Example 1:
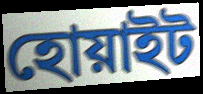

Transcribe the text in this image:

হোয়াইট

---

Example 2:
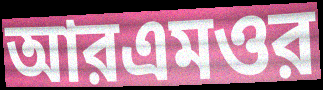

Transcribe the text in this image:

আরএমওর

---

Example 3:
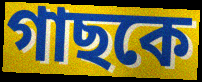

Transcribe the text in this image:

গাছকে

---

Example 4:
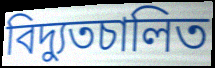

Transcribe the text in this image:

বিদ্যুতচালিত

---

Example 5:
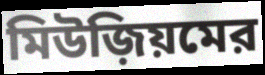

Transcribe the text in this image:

মিউজ়িয়মের